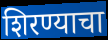
शिरण्याचा